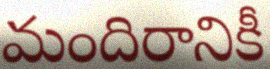
మందిరానికీ